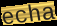
echa